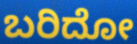
ಬರಿದೋ